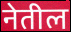
नेतील